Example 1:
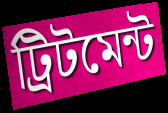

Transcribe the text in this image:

ট্রিটমেন্ট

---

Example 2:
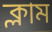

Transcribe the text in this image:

ক্লাম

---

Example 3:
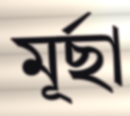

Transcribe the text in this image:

মূর্ছা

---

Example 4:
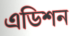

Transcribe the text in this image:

এডিশন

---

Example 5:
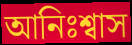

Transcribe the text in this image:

আনিঃশ্বাস